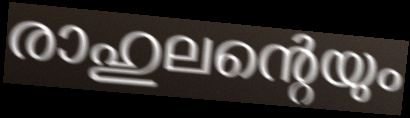
രാഹുലന്റെയും